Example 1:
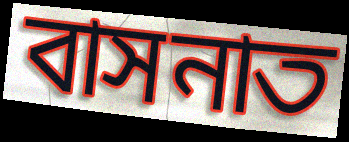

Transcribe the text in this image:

বাসনাত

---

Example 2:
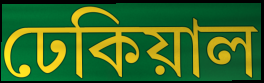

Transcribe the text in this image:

ঢেকিয়াল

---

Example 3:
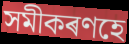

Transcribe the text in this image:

সমীকৰণহে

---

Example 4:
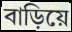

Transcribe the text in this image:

বাড়িয়ে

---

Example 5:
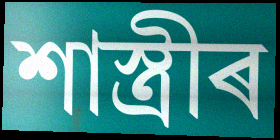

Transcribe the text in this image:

শাস্ত্ৰীৰ